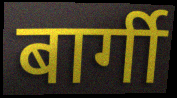
बार्गी